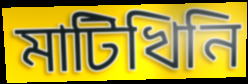
মাটিখিনি